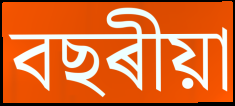
বছৰীয়া